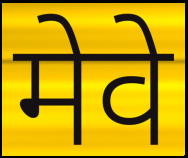
मेवे